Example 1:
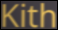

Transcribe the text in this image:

Kith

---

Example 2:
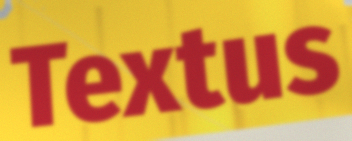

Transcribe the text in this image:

Textus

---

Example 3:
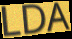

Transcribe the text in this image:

LDA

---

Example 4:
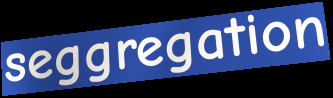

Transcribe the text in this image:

seggregation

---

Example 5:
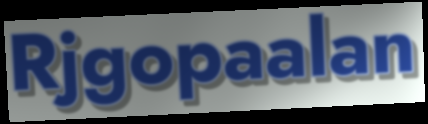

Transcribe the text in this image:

Rjgopaalan